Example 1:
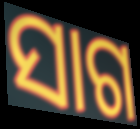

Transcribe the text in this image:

ସାଗ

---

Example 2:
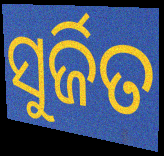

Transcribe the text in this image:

ସୁର୍ଜିତ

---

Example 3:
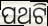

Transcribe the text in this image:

ପଥଟି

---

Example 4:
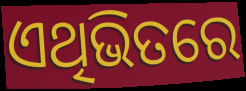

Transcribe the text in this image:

ଏଥିଭିତରେ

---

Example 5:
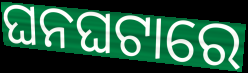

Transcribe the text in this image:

ଘନଘଟାରେ